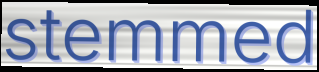
stemmed